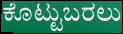
ಕೊಟ್ಟುಬರಲು